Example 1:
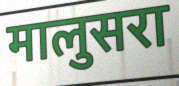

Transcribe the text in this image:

मालुसरा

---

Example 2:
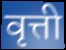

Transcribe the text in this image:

वृत्ती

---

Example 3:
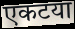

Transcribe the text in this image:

एकटया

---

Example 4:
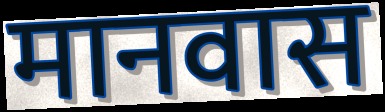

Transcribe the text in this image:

मानवास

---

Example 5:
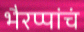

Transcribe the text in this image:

भैरप्पांचं